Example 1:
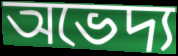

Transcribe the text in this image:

অভেদ্য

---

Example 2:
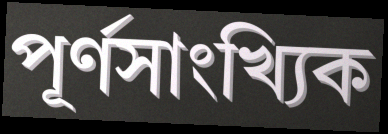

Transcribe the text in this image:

পূর্ণসাংখ্যিক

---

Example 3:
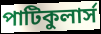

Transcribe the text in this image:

পাটিকুলার্স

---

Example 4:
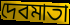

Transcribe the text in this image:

দেবমাতা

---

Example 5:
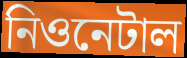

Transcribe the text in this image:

নিওনেটাল